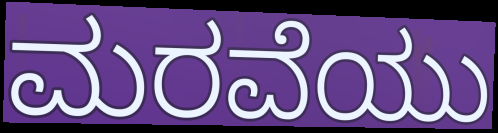
ಮರವೆಯು